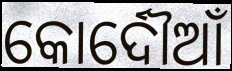
କୋର୍ଦୌଆଁ